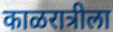
काळरात्रीला